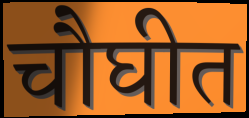
चौघीत